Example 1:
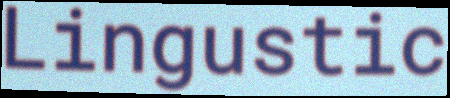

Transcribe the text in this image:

Lingustic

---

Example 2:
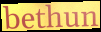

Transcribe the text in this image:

bethun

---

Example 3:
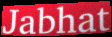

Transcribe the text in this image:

Jabhat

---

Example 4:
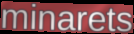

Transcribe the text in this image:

minarets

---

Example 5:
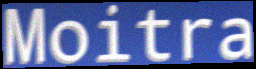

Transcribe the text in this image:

Moitra